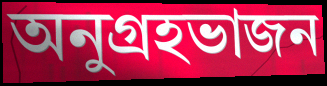
অনুগ্রহভাজন